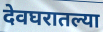
देवघरातल्या